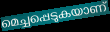
മെച്ചപ്പെടുകയാണ്